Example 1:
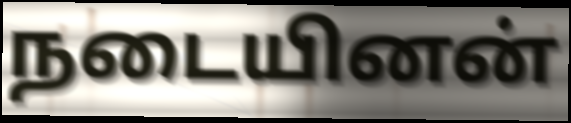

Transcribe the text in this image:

நடையினன்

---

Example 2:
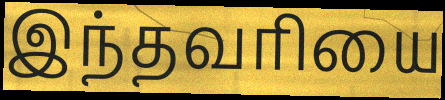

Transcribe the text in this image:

இந்தவரியை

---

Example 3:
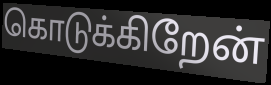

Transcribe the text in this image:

கொடுக்கிறேன்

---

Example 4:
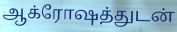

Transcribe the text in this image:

ஆக்ரோஷத்துடன்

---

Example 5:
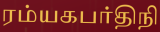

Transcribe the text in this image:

ரம்யகபர்திநி